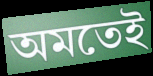
অমতেই